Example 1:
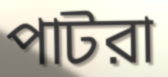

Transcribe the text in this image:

পাটরা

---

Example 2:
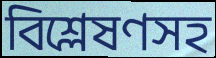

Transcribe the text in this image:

বিশ্লেষণসহ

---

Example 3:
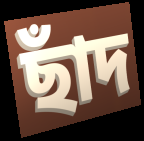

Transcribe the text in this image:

ছাঁদ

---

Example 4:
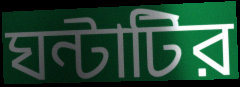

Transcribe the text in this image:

ঘন্টাটির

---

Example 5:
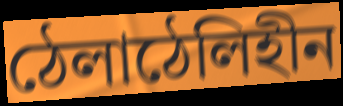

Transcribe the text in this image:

ঠেলাঠেলিহীন